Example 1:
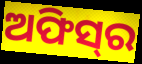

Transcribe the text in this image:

ଅଫିସ୍‌ର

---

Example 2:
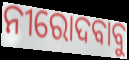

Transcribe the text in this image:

ନୀରୋଦବାବୁ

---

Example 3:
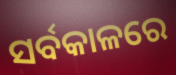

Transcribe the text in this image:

ସର୍ବକାଳରେ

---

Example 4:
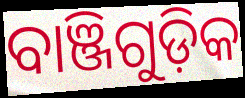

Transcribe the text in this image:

ବାଞ୍ଜିଗୁଡ଼ିକ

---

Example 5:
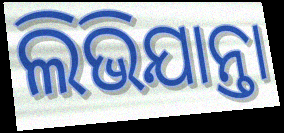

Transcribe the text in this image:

ଲିଭିଯାନ୍ତା